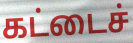
கட்டைச்